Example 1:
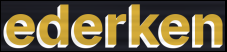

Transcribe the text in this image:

ederken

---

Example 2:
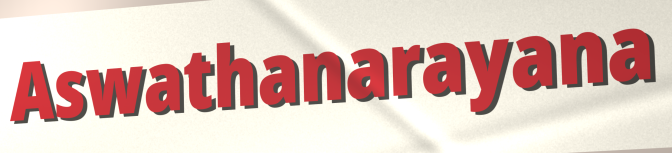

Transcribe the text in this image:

Aswathanarayana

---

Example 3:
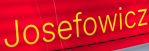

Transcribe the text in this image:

Josefowicz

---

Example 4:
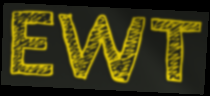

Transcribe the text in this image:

EWT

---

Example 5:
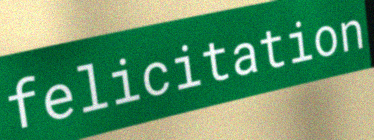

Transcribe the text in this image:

felicitation